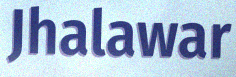
Jhalawar